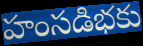
హంసడిభకు